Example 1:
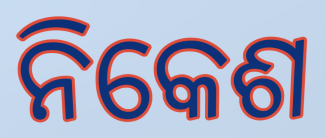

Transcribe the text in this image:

ନିକେଶ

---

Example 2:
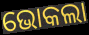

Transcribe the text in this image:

ଭୋକଲା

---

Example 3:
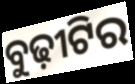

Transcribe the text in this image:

ବୁଢ଼ୀଟିର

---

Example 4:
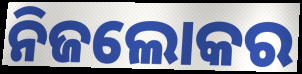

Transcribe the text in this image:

ନିଜଲୋକର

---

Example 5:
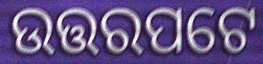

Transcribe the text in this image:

ଉତ୍ତରପଟେ